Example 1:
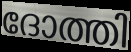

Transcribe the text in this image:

ദോത്തി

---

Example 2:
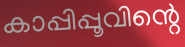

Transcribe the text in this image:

കാപ്പിപ്പൂവിന്റെ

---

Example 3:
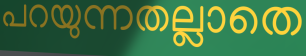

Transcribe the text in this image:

പറയുന്നതല്ലാതെ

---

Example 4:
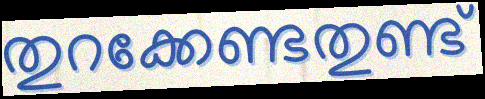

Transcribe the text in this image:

തുറക്കേണ്ടതുണ്ട്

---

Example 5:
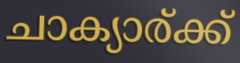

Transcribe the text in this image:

ചാക്യാര്ക്ക്